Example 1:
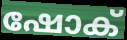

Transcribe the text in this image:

ഷോക്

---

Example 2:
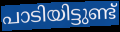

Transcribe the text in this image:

പാടിയിട്ടുണ്ട്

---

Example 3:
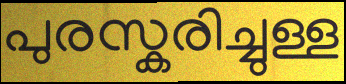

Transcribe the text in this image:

പുരസ്കരിച്ചുള്ള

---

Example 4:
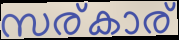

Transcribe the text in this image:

സര്കാര്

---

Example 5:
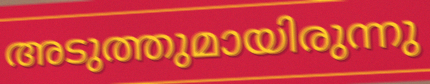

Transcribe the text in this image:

അടുത്തുമായിരുന്നു